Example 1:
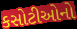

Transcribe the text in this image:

કસોટીઓનો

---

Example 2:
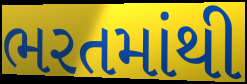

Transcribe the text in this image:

ભરતમાંથી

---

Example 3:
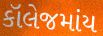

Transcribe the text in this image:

કૉલેજમાંય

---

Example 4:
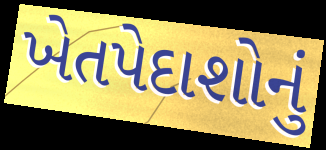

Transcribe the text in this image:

ખેતપેદાશોનું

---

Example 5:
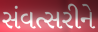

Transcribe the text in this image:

સંવત્સરીને